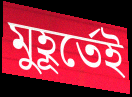
মুহূর্তেই